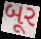
બૂર